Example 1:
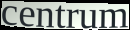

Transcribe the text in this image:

centrum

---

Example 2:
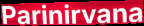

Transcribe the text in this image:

Parinirvana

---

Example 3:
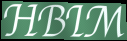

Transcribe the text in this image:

HBIM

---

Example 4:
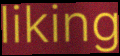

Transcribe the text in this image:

liking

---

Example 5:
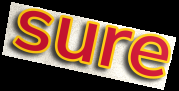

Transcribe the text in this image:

sure